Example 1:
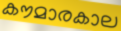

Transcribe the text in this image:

കൗമാരകാല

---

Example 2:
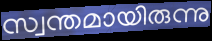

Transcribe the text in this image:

സ്വന്തമായിരുന്നു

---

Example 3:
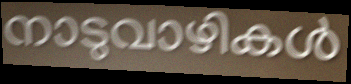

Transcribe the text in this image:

നാടുവാഴികൾ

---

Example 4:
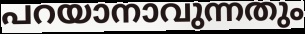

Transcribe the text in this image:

പറയാനാവുന്നതും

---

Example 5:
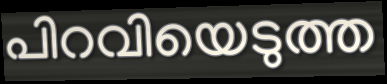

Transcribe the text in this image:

പിറവിയെടുത്ത